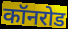
कॉनरोड